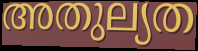
അതുല്യത